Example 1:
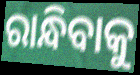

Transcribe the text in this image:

ରାନ୍ଧିବାକୁ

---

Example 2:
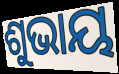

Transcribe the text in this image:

ଶୁଭାୟ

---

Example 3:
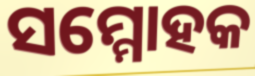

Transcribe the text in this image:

ସମ୍ମୋହକ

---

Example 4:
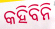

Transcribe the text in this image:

କହିବିନି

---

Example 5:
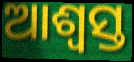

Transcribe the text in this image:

ଆଶ୍ବସ୍ତ